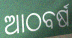
ଆଠବର୍ଷ